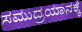
ಸಮುದ್ರಯಾನಕ್ಕೆ